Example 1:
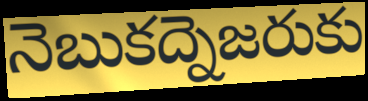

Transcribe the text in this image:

నెబుకద్నెజరుకు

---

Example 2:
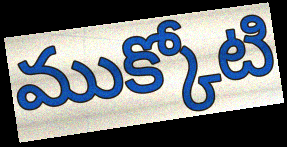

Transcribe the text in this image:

ముక్కోటి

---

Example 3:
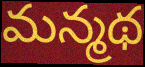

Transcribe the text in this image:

మన్మథ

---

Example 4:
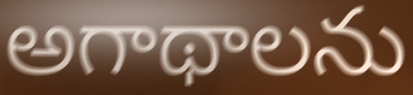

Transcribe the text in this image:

అగాథాలను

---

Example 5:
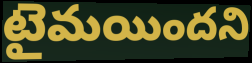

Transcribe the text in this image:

టైమయిందని